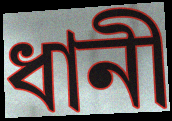
ধানী